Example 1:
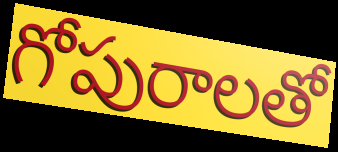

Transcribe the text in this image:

గోపురాలతో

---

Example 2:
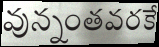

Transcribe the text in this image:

వున్నంతవరకే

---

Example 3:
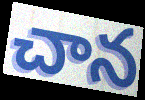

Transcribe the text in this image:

చాన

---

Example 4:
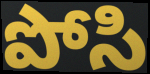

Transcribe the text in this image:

పోసి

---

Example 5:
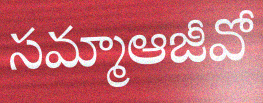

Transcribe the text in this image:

సమ్మాఆజీవో